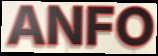
ANFO